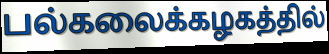
பல்கலைக்கழகத்தில்